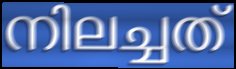
നിലച്ചത്